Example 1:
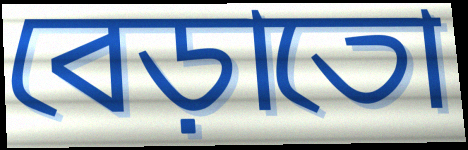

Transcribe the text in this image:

বেড়াতো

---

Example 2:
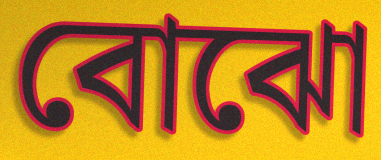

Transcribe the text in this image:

বোঝো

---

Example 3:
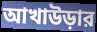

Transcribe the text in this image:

আখাউড়ার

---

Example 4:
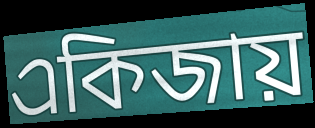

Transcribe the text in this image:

একিজায়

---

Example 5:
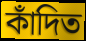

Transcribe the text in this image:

কাঁদিত